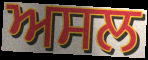
ਅਸਲ